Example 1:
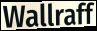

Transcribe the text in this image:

Wallraff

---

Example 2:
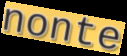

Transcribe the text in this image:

nonte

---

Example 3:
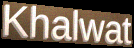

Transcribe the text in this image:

Khalwat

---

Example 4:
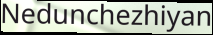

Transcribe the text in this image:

Nedunchezhiyan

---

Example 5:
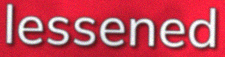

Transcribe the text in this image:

lessened